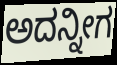
ಅದನ್ನೀಗ